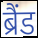
ब्रैंड